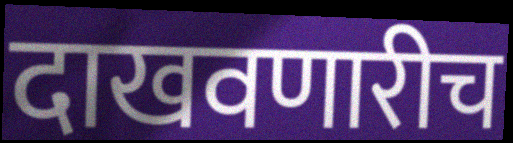
दाखवणारीच